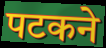
पटकने